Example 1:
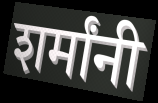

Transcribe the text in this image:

शर्मांनी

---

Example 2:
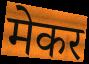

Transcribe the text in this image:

मेकर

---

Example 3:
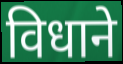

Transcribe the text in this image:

विधाने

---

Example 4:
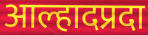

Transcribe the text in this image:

आल्हादप्रदा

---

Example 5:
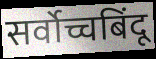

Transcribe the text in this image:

सर्वोच्चबिंदू